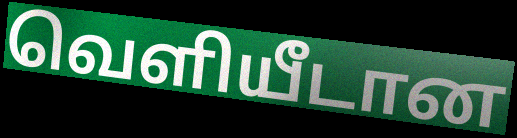
வெளியீடான